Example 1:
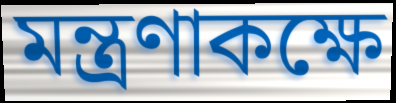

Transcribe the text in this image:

মন্ত্রণাকক্ষে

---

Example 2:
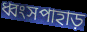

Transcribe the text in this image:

ধ্বংসপাহাড়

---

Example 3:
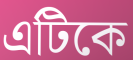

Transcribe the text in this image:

এটিকে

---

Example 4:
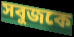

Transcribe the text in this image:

সবুজকে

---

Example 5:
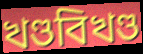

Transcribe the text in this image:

খণ্ডবিখণ্ড